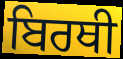
ਬਿਰਥੀ